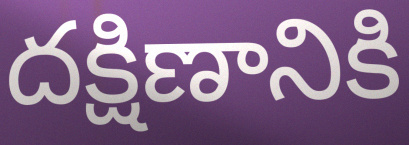
దక్షిణానికి